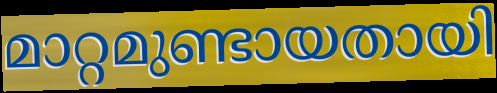
മാറ്റമുണ്ടായതായി